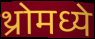
थ्रोमध्ये